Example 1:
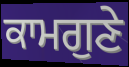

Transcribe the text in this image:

ਕਾਮਗੁਣੇ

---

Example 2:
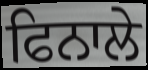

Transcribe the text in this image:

ਫਿਨਾਲੇ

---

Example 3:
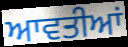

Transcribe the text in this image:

ਆਵਤੀਆਂ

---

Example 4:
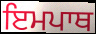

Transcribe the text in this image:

ਇਮਪਾਥ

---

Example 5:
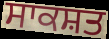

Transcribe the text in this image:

ਸਾਕਸ਼ਤ